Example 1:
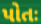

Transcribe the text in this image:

પોતઃ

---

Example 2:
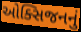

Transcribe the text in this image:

ઓક્સિજનનું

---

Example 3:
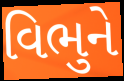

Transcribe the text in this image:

વિભુને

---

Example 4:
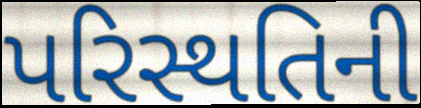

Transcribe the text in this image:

પરિસ્થતિની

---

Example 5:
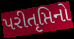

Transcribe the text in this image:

પરીતૃપ્તિનો